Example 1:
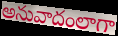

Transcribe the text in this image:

అనువాదంలాగా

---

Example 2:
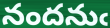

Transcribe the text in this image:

నందనుఁ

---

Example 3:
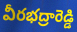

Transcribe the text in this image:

వీరభద్రారెడ్డి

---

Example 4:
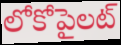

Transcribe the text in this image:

లోకోపైలట్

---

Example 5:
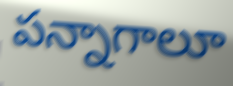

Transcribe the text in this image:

పన్నాగాలూ